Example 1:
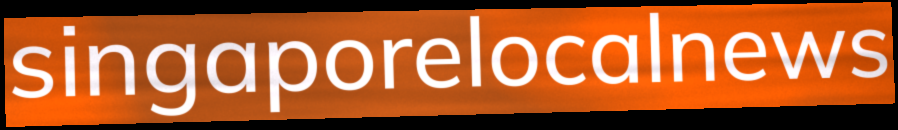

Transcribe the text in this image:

singaporelocalnews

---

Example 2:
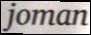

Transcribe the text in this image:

joman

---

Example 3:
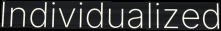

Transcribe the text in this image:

Individualized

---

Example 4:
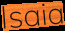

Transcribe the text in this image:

Isaia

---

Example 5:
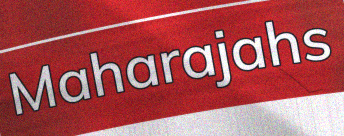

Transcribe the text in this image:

Maharajahs